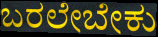
ಬರಲೇಬೇಕು